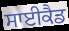
ਸਾਈਕੈਡ